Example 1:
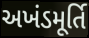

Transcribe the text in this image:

અખંડમૂર્તિ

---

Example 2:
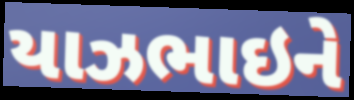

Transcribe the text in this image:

યાઝભાઇને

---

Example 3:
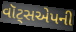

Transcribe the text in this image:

વૉટ્સએપની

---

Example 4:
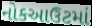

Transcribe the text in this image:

નોકઆઉટમાં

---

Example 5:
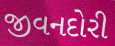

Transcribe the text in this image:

જીવનદોરી